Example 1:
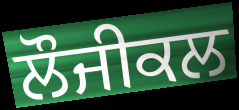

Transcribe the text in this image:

ਲੌਜੀਕਲ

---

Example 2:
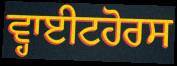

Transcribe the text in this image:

ਵ੍ਹਾਈਟਹੋਰਸ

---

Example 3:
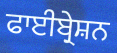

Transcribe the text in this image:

ਫਾਈਬ੍ਰੇਸ਼ਨ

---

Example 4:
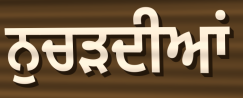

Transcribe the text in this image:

ਨੁਚੜਦੀਆਂ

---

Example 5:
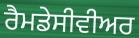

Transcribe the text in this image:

ਰੈਮਡੇਸੀਵੀਅਰ